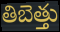
తిబెత్తు